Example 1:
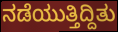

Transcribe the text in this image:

ನಡೆಯುತ್ತಿದ್ದಿತು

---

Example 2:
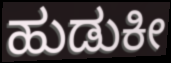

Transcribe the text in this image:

ಹುಡುಕೀ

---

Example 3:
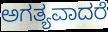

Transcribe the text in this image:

ಅಗತ್ಯವಾದರೆ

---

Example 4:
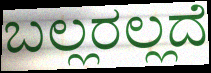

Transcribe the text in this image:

ಬಲ್ಲರಲ್ಲದೆ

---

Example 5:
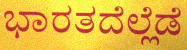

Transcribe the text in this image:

ಭಾರತದೆಲ್ಲೆಡೆ